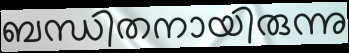
ബന്ധിതനായിരുന്നു